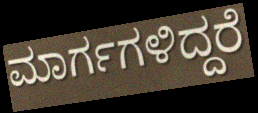
ಮಾರ್ಗಗಳಿದ್ದರೆ